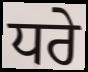
ਧਰੇ